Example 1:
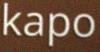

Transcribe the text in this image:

kapo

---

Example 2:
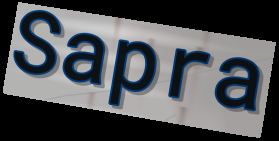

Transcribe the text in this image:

Sapra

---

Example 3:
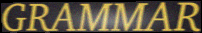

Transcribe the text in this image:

GRAMMAR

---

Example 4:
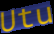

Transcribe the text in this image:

Utu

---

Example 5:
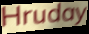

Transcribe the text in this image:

Hruday